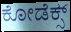
ಕೋಡೆಕ್ಸ್